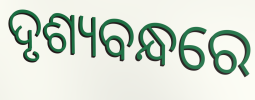
ଦୃଶ୍ୟବନ୍ଧରେ